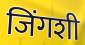
जिंगशी